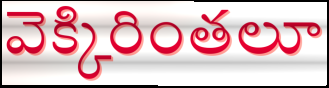
వెక్కిరింతలూ